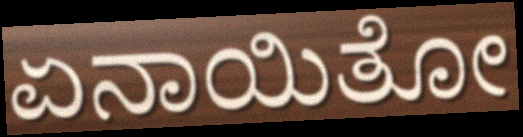
ಏನಾಯಿತೋ